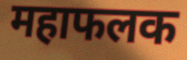
महाफलक